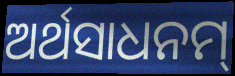
ଅର୍ଥସାଧନମ୍